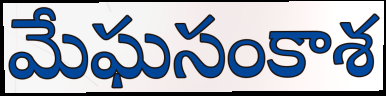
మేఘసంకాశ